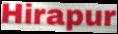
Hirapur